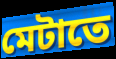
মেটাতে